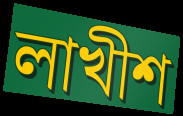
লাখীশ